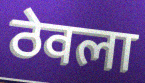
ठेवला